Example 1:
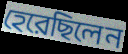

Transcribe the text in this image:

হেরেছিলেন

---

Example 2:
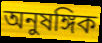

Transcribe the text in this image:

অনুষঙ্গিক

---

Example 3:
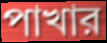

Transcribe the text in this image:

পাখার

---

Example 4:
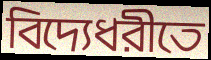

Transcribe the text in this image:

বিদ্যেধরীতে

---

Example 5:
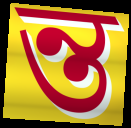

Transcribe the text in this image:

ন্ত